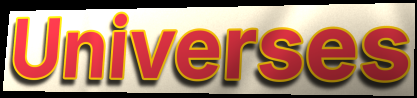
Universes